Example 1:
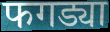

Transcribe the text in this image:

फगड्या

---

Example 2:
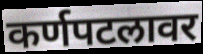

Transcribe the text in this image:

कर्णपटलावर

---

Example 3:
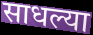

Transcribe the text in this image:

साधल्या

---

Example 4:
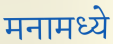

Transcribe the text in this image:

मनामध्ये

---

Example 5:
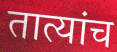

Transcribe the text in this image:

तात्यांच